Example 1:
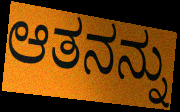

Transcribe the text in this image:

ಆತನನ್ನು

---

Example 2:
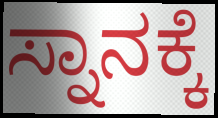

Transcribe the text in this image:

ಸ್ನಾನಕ್ಕೆ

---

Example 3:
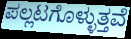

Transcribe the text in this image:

ಪಲ್ಲಟಗೊಳ್ಳುತ್ತವೆ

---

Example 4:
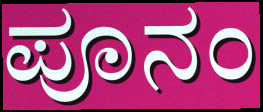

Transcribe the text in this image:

ಪೂನಂ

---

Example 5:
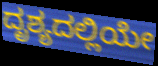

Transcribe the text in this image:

ದೃಶ್ಯದಲ್ಲಿಯೇ